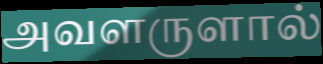
அவளருளால்